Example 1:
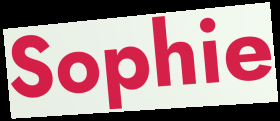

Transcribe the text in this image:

Sophie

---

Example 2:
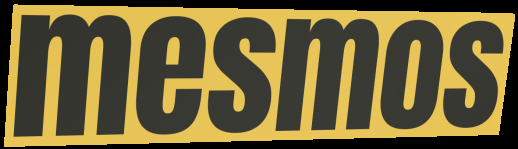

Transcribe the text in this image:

mesmos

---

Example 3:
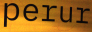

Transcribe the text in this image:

perur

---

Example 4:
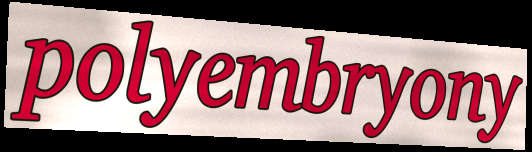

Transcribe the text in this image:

polyembryony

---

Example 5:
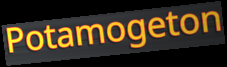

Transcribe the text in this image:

Potamogeton